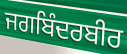
ਜਗਬਿੰਦਰਬੀਰ